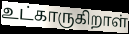
உட்காருகிறாள்